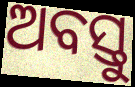
ଅବସ୍ତୁ